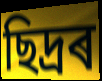
ছিদ্ৰৰ